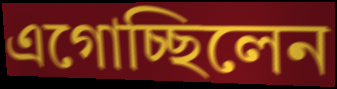
এগোচ্ছিলেন